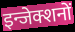
इन्जेक्शनों